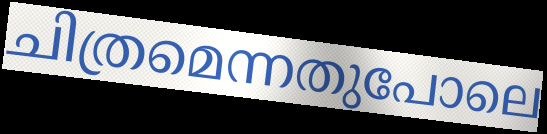
ചിത്രമെന്നതുപോലെ